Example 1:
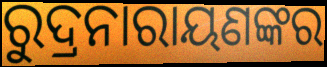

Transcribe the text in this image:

ରୁଦ୍ରନାରାୟଣଙ୍କର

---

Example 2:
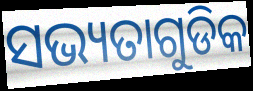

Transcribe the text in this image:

ସଭ୍ୟତାଗୁଡିକ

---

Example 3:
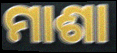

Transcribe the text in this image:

ମାଶା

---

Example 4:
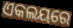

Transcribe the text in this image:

ଏକଲୟରେ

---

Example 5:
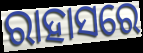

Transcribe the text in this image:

ରାହାସରେ